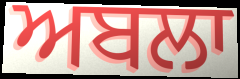
ਅਬਲਾ